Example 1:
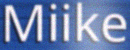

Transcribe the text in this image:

Miike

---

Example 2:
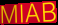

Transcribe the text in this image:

MIAB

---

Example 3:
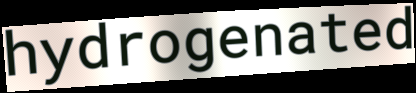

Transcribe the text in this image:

hydrogenated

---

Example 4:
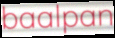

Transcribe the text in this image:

baalpan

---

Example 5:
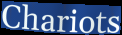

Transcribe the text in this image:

Chariots